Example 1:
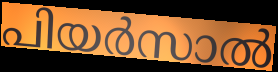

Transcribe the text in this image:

പിയർസാൽ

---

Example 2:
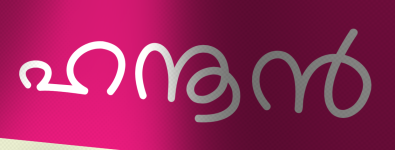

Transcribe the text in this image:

ഹനൂൻ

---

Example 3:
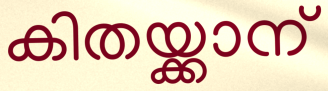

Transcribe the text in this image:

കിതയ്ക്കാന്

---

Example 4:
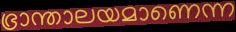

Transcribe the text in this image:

ഭ്രാന്താലയമാണെന്ന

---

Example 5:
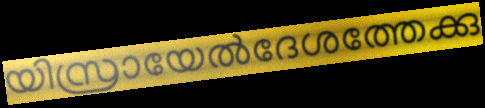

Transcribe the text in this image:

യിസ്രായേൽദേശത്തേക്കു